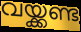
വയ്ക്കണ്ട